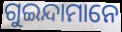
ଗୁଇନ୍ଦାମାନେ